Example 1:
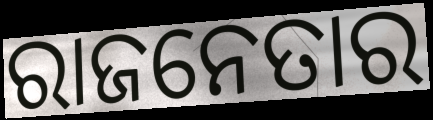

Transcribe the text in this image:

ରାଜନେତାର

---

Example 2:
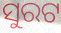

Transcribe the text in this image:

ସୁରଟ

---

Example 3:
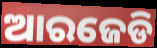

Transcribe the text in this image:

ଆରଜେଡି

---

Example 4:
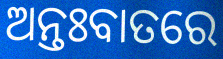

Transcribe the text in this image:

ଅନ୍ତଃବାତରେ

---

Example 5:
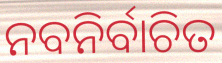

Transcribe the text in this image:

ନବନିର୍ବାଚିତ